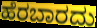
ಹೆರಬಾರದು